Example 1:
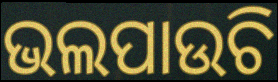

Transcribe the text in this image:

ଭଲପାଉଚି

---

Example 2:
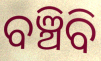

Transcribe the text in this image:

ବଞ୍ଚିବି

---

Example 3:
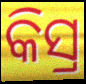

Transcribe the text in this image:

କିସ୍ର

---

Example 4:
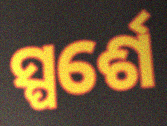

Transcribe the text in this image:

ସ୍ପର୍ଶେ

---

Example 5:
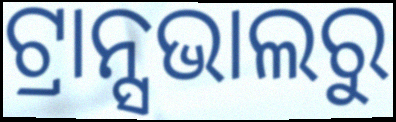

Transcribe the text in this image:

ଟ୍ରାନ୍ସଭାଲରୁ